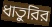
ধাতুরির